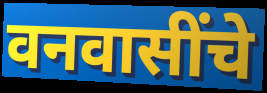
वनवासींचे